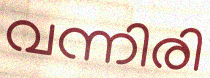
വന്നിരി